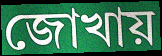
জোখায়